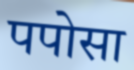
पपोसा